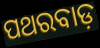
ପଥରବାଡ଼